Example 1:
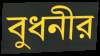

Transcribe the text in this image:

বুধনীর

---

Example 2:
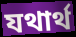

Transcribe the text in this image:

যথার্থ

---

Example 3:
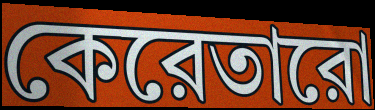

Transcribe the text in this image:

কেরেতারো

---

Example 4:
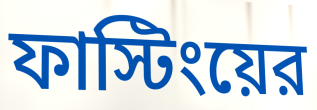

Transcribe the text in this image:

ফাস্টিংয়ের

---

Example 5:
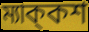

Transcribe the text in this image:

ম্যাক্‌কশ